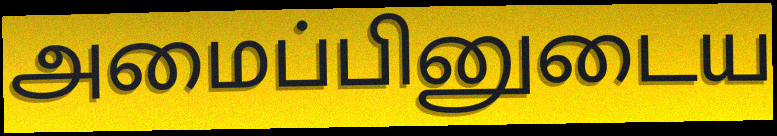
அமைப்பினுடைய